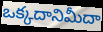
ఒక్కదానిమీదా